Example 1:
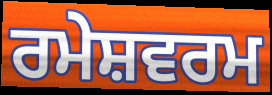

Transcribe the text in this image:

ਰਮੇਸ਼ਵਰਮ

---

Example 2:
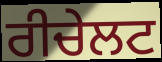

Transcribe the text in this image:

ਰੀਚੇਲਟ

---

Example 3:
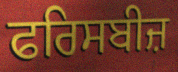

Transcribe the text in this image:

ਫਰਿਸਬੀਜ਼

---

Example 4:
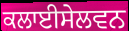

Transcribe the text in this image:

ਕਲਾਈਸੇਲਵਨ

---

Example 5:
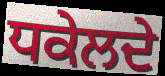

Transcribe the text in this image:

ਧਕੇਲਦੇ